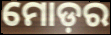
ମୋଡ଼ର